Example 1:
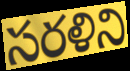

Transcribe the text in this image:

సరళిని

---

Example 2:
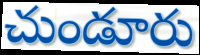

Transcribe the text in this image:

చుండూరు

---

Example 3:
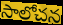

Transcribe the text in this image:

సాలోచన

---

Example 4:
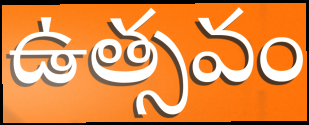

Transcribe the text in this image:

ఉత్సవం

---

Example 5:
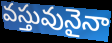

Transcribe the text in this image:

వస్తువునైనా